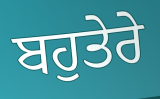
ਬਹੁਤੇਰੇ